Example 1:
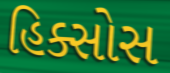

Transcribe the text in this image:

હિક્સોસ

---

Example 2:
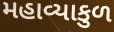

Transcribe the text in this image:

મહાવ્યાકુળ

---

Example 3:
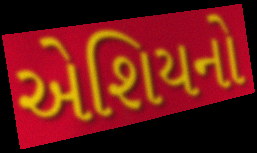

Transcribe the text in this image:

એશિયનો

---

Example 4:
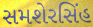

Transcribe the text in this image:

સમશેરસિંહ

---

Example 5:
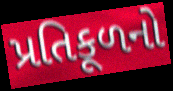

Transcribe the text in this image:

પ્રતિકૂળનો